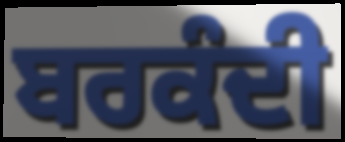
ਬਰਕੰਦੀ